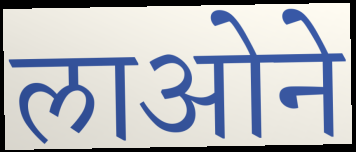
लाओने